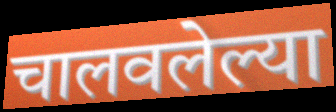
चालवलेल्या